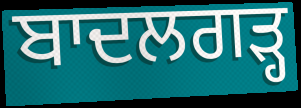
ਬਾਦਲਗੜ੍ਹ